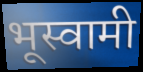
भूस्वामी